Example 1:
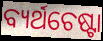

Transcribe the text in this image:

ବ୍ୟର୍ଥଚେଷ୍ଟା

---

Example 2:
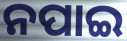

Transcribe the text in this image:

ନପାଇ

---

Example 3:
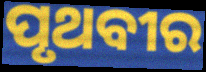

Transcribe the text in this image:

ପୃଥବୀର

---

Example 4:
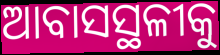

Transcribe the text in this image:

ଆବାସସ୍ଥଳୀକୁ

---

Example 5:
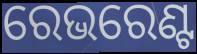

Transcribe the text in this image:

ରେଭରେଣ୍ଟ